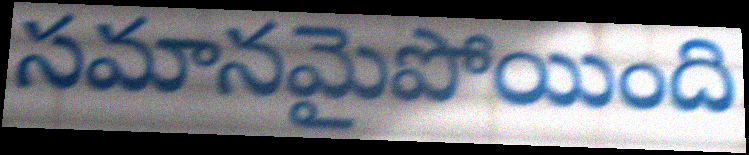
సమానమైపోయింది